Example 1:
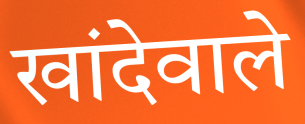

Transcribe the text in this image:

खांदेवाले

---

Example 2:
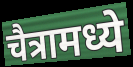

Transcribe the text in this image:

चैत्रामध्ये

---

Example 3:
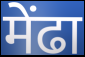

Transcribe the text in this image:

मेंढा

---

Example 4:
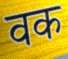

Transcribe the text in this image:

वक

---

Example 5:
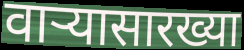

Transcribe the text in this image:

वाऱ्यासारख्या